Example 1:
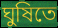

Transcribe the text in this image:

ঘুষিতে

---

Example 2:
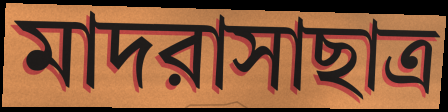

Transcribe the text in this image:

মাদরাসাছাত্র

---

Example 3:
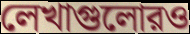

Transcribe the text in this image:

লেখাগুলোরও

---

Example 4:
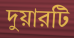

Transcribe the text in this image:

দুয়ারটি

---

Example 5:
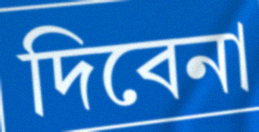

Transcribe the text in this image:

দিবেনা